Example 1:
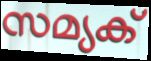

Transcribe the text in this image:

സമ്യക്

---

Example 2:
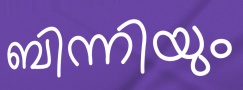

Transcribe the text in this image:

ബിന്നിയും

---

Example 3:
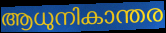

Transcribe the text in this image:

ആധുനികാന്തര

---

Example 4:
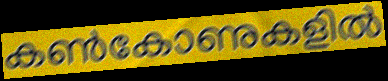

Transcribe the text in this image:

കൺകോണുകളിൽ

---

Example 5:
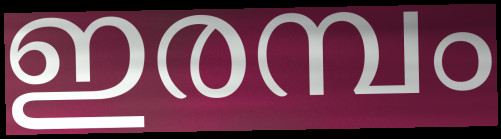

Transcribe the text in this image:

ഇരമ്പം